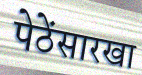
पेठेंसारखा